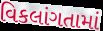
વિકલાંગતામાં